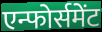
एन्फोर्समेंट